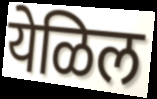
येळिल